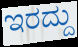
ಇರದ್ದು